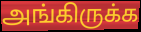
அங்கிருக்க